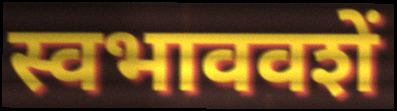
स्वभाववशें